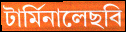
টার্মিনালেছবি